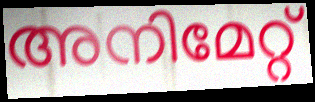
അനിമേറ്റ്